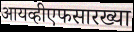
आयव्हीएफसारख्या